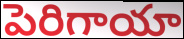
పెరిగాయా